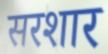
सरशार